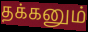
தக்கனும்